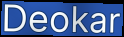
Deokar